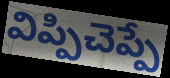
విప్పిచెప్పే